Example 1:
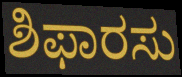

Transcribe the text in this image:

ಶಿಫಾರಸು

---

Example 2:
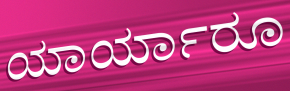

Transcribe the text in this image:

ಯಾರ್ಯಾರೂ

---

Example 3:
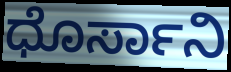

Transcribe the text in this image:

ಧೊರ್ಸಾನಿ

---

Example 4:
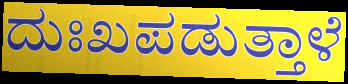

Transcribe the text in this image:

ದುಃಖಪಡುತ್ತಾಳೆ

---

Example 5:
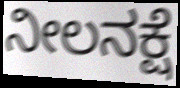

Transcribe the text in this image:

ನೀಲನಕ್ಷೆ